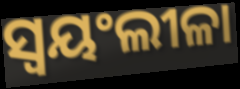
ସ୍ବୟଂଲୀଳା